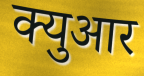
क्युआर